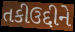
તકીઉદ્દીને